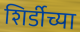
शिर्डीच्या